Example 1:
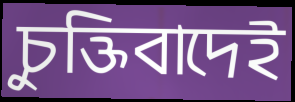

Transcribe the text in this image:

চুক্তিবাদেই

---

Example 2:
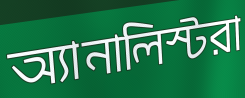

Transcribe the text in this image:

অ্যানালিস্টরা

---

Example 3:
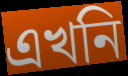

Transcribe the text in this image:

এখনি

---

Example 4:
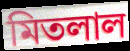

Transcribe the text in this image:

মিতলাল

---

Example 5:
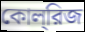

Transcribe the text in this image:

কোল্‌রিজ